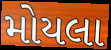
મોયલા